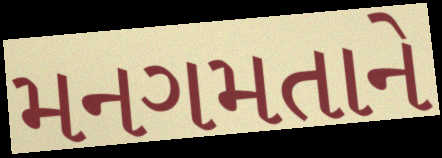
મનગમતાને